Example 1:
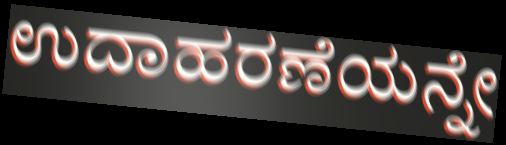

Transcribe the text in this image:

ಉದಾಹರಣೆಯನ್ನೇ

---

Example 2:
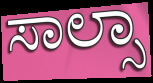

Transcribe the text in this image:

ಸಾಲ್ಸಾ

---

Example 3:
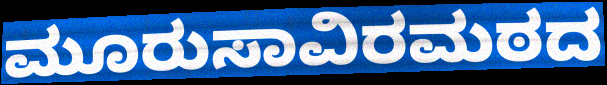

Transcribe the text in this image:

ಮೂರುಸಾವಿರಮಠದ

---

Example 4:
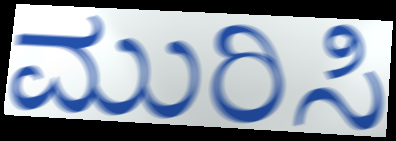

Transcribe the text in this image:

ಮುರಿಸಿ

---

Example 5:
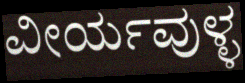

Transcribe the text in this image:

ವೀರ್ಯವುಳ್ಳ